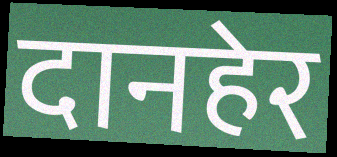
दानहेर